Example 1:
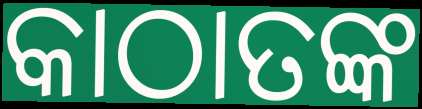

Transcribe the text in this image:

କାଠାତଙ୍କ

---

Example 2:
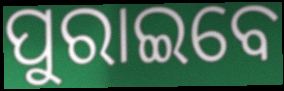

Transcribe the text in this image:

ପୁରାଇବେ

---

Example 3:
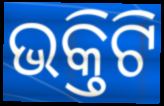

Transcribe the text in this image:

ଭକ୍ତିଟି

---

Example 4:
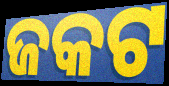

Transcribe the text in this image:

ଜକଟ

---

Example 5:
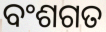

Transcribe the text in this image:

ବଂଶଗତ